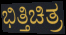
ಭಿತ್ತಿಚಿತ್ರ